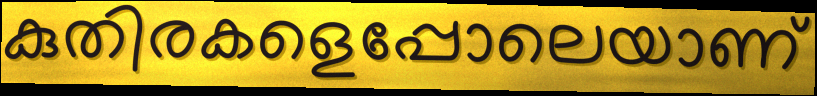
കുതിരകളെപ്പോലെയാണ്